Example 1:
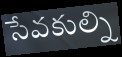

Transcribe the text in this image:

సేవకుల్ని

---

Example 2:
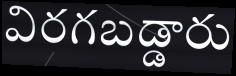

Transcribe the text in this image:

విరగబడ్డారు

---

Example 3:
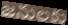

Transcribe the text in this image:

జనులకు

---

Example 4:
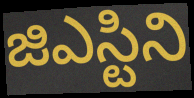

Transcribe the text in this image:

జిఎస్టిని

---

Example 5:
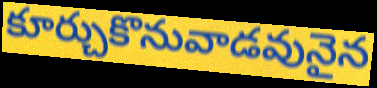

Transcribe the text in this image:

కూర్చుకొనువాడవునైన